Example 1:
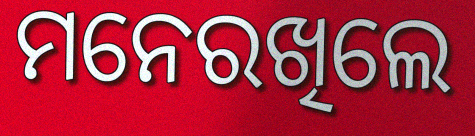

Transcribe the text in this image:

ମନେରଖିଲେ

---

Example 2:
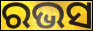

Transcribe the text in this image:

ରଭସ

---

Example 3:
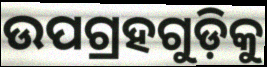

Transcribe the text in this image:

ଉପଗ୍ରହଗୁଡ଼ିକୁ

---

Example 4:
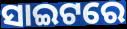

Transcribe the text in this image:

ସାଇଟରେ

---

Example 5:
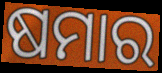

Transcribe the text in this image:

ଷମାର